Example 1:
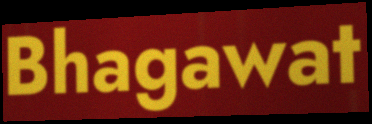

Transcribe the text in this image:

Bhagawat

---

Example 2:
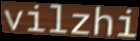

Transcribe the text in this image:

vilzhi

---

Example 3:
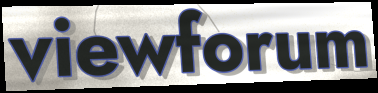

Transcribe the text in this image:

viewforum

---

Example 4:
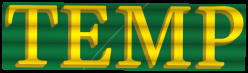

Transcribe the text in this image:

TEMP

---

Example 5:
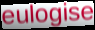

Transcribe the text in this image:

eulogise